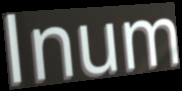
Inum